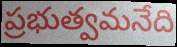
ప్రభుత్వమనేది